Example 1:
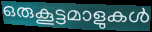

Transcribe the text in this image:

ഒരുകൂട്ടമാളുകൾ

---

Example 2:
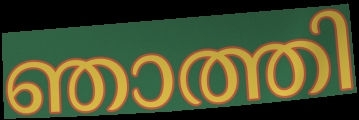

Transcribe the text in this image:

ഞാത്തി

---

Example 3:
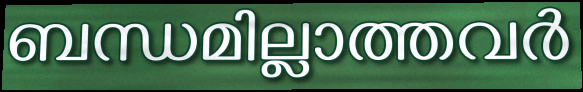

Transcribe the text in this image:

ബന്ധമില്ലാത്തവർ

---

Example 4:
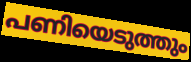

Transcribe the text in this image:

പണിയെടുത്തും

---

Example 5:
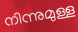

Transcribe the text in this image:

നിന്നുമുള്ള